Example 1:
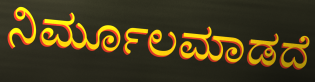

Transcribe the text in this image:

ನಿರ್ಮೂಲಮಾಡದೆ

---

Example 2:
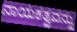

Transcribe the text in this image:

ನಾಯಕತ್ವವನ್ನು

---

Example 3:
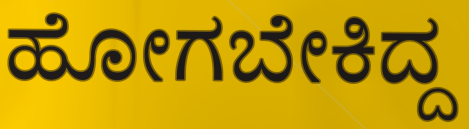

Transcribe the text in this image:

ಹೋಗಬೇಕಿದ್ದ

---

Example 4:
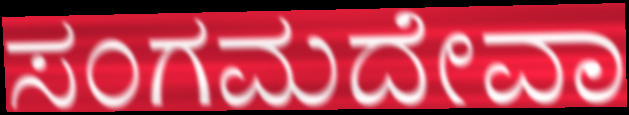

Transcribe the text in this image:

ಸಂಗಮದೇವಾ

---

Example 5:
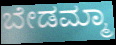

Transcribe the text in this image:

ಬೇಡಮ್ಮಾ